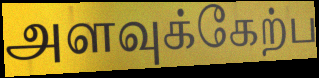
அளவுக்கேற்ப